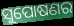
ସୁପୋଷଣର